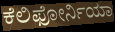
ಕೆಲಿಫೋರ್ನಿಯಾ